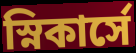
স্নিকার্সে